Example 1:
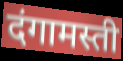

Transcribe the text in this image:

दंगामस्ती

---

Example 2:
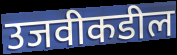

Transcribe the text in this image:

उजवीकडील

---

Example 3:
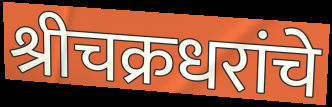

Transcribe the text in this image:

श्रीचक्रधरांचे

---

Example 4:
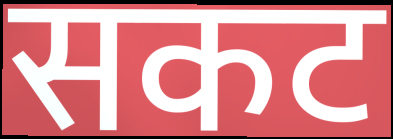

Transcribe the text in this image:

सकट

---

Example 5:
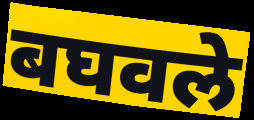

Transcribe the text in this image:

बघवले